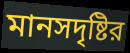
মানসদৃষ্টির